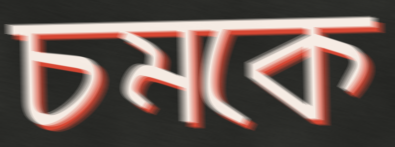
চমকে